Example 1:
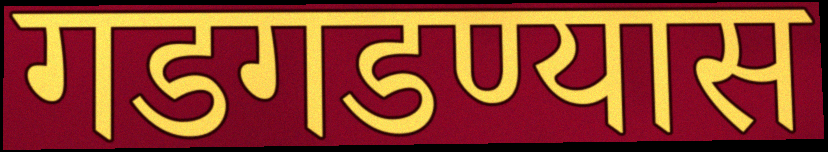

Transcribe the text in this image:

गडगडण्यास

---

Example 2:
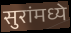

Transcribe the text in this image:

सुरांमध्ये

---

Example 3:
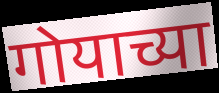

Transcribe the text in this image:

गोयाच्या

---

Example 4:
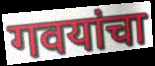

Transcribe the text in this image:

गवयांचा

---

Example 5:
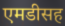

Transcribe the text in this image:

एमडीसह